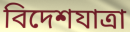
বিদেশযাত্রা